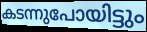
കടന്നുപോയിട്ടും